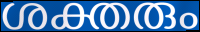
ശക്തരും